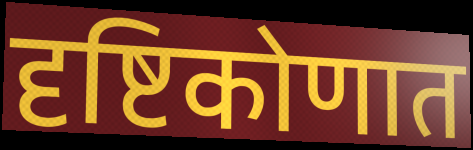
दृष्टिकोणात